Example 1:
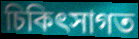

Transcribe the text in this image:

চিকিৎসাগত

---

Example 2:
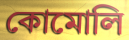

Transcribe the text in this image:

কোমোলি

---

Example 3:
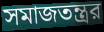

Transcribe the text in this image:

সমাজতন্ত্রর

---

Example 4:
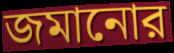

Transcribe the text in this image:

জমানোর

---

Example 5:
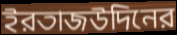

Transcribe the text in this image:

ইরতাজউদিনের